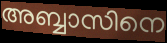
അബ്ബാസിനെ